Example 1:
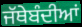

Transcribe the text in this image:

ਜੱਥੇਬੰਦੀਆਂ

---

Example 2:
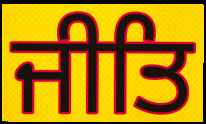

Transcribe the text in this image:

ਜੀਤਿ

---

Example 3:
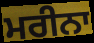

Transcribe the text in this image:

ਮਰੀਨਾ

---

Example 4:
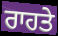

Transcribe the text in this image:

ਰਾਹਤੇ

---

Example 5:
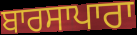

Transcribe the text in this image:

ਬਾਰਸਾਪਾਰਾ